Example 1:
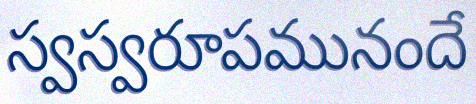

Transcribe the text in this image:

స్వస్వరూపమునందే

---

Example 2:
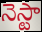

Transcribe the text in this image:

నెస్టా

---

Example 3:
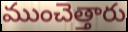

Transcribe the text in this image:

ముంచెత్తారు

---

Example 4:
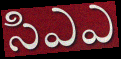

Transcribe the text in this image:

సిఎఎ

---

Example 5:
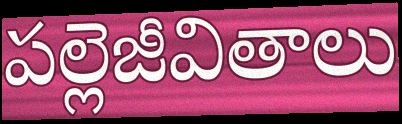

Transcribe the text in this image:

పల్లెజీవితాలు